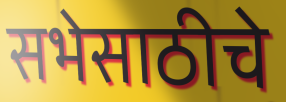
सभेसाठीचे